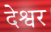
देश्वर